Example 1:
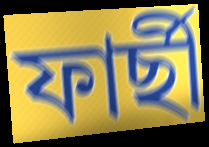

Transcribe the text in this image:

ফাৰ্ছী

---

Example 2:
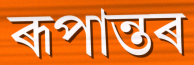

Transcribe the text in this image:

ৰূপান্তৰ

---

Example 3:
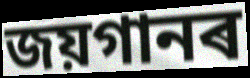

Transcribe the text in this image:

জয়গানৰ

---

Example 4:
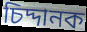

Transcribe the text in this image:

চিদ্দানক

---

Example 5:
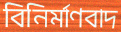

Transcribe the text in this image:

বিনিৰ্মাণবাদ